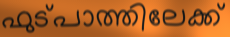
ഫുട്പാത്തിലേക്ക്